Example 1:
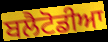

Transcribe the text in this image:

ਬਲੈਟੋਡੀਆ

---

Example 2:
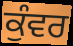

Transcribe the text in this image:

ਕੁੰਵਰ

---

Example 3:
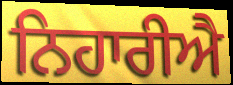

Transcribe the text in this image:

ਨਿਹਾਰੀਐ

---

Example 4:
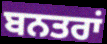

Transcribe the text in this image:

ਬਨਤਰਾਂ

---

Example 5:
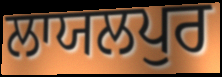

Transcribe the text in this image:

ਲਾਯਲਪੁਰ